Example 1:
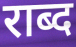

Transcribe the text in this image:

राब्द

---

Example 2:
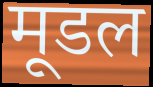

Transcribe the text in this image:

मूडल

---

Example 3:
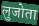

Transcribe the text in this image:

लुजोता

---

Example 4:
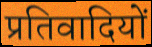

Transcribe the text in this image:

प्रतिवादियों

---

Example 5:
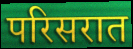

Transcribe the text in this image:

परिसरात